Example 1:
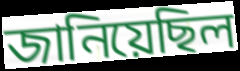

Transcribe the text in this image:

জানিয়েছিল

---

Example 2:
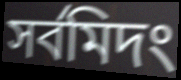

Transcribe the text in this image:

সর্বমিদং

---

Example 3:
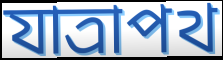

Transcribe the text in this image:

যাত্রাপথ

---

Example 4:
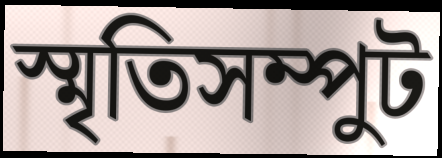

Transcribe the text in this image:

স্মৃতিসম্পুট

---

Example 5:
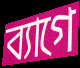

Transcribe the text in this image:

ব্যাগে